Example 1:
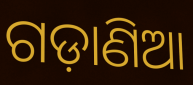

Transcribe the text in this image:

ଗଡ଼ାଣିଆ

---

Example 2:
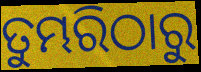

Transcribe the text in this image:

ତୁମ୍ଭରିଠାରୁ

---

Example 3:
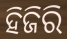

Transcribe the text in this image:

ହିଜିରି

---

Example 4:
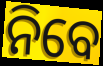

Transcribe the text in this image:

ନିବେ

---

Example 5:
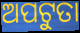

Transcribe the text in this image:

ଅପଟୁତା